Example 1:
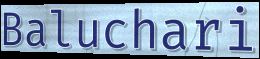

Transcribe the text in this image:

Baluchari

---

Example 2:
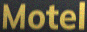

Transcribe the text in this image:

Motel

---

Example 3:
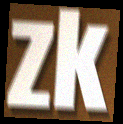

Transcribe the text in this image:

zk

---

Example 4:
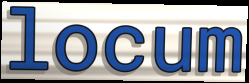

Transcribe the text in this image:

locum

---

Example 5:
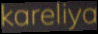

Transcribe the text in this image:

kareliya